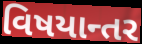
વિષયાન્તર